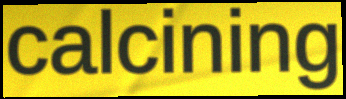
calcining